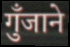
गुँजाने